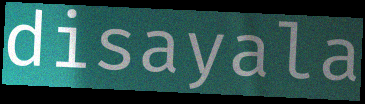
disayala